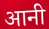
आनी